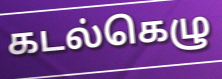
கடல்கெழு